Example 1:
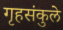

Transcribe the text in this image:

गृहसंकुले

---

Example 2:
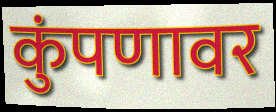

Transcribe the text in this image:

कुंपणावर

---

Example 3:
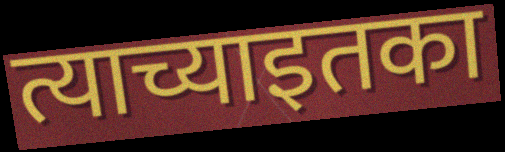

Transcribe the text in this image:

त्याच्याइतका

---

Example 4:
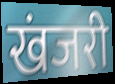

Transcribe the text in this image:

खंजरी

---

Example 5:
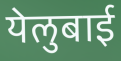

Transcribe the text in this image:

येलुबाई